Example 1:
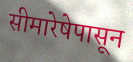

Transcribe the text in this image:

सीमारेषेपासून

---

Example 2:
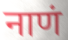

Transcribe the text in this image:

नाणं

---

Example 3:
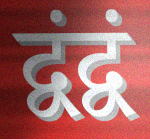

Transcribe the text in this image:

द्वंद्वं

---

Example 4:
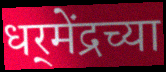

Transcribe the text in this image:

धर्मेंद्रच्या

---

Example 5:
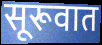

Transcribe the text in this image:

सूरूवात